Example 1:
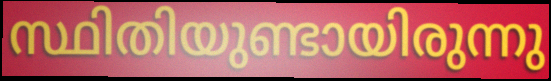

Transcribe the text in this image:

സ്ഥിതിയുണ്ടായിരുന്നു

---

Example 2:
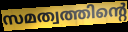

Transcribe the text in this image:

സമത്വത്തിന്റെ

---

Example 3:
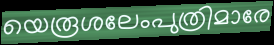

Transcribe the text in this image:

യെരൂശലേംപുത്രിമാരേ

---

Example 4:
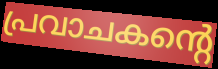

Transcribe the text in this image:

പ്രവാചകന്റെ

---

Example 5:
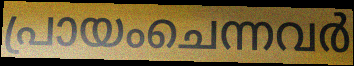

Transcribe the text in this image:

പ്രായംചെന്നവർ